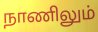
நாணிலும்